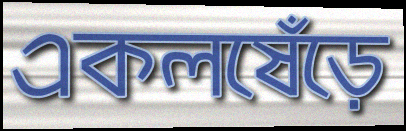
একলষেঁড়ে